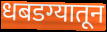
धबडग्यातून